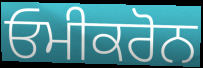
ਓਮੀਕਰੋਨ